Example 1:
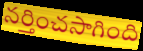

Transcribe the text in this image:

నర్తించసాగింది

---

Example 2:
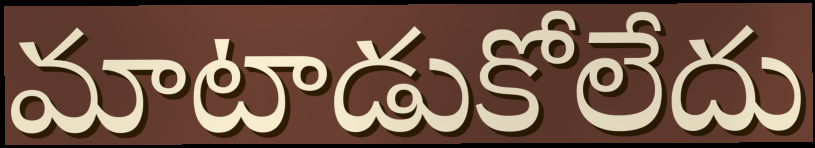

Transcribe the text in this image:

మాటాడుకోలేదు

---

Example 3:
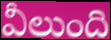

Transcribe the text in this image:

వీలుంది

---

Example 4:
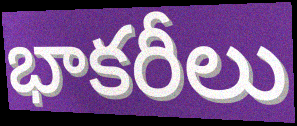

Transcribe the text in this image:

భాకరీలు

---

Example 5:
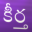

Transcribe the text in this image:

కీర్త